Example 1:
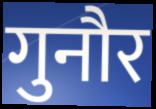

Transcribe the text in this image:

गुनौर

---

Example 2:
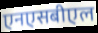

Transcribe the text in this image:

एनएसबीएल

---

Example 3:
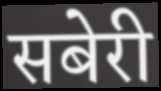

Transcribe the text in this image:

सबेरी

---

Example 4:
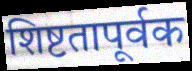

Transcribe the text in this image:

शिष्टतापूर्वक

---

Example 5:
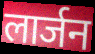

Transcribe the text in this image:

लार्जन